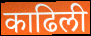
काढिली